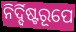
ନିର୍ଦ୍ଦିଷ୍ଟରୂପେ